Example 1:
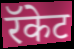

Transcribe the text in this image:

रॅकेट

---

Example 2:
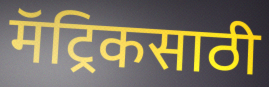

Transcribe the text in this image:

मॅट्रिकसाठी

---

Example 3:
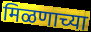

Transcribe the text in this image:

मिळणाच्या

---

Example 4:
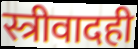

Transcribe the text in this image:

स्त्रीवादही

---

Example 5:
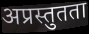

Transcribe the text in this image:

अप्रस्तुतता